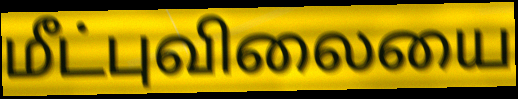
மீட்புவிலையை